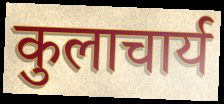
कुलाचार्य